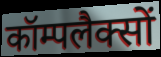
कॉम्पलैक्सों